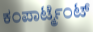
ಕಂಪಾರ್ಟ್ಮೆಂಟ್